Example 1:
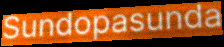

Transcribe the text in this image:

Sundopasunda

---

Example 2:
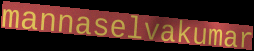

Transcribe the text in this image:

mannaselvakumar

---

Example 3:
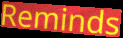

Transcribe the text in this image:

Reminds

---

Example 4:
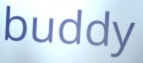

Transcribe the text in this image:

buddy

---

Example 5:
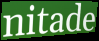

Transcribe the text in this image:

nitade